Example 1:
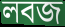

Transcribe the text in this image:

লবজ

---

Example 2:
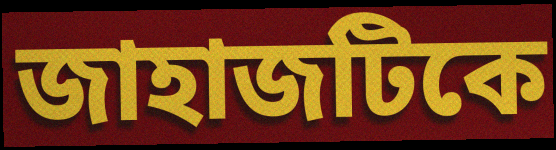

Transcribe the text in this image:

জাহাজটিকে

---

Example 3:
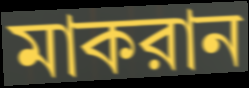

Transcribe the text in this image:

মাকরান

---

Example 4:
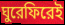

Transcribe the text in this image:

ঘুরেফিরেই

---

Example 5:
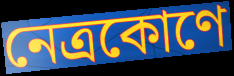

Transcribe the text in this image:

নেত্রকোণে